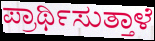
ಪ್ರಾರ್ಥಿಸುತ್ತಾಳೆ